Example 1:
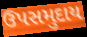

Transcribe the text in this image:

ઉપસમુદાય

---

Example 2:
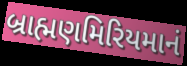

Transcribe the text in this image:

બ્રાહ્મણમિરિયમાનં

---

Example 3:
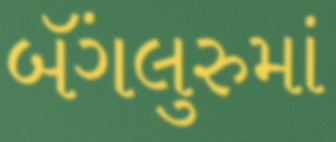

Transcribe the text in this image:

બૅંગલુરુમાં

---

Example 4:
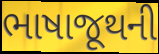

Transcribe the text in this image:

ભાષાજૂથની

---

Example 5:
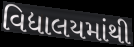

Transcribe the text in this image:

વિદ્યાલયમાંથી